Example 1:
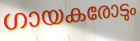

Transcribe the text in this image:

ഗായകരോടും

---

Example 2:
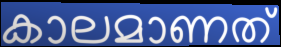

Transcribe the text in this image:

കാലമാണത്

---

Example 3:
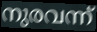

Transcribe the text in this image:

നുരവന്ന്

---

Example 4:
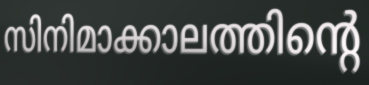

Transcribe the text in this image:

സിനിമാക്കാലത്തിന്റെ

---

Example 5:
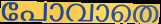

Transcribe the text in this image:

പോവാതെ